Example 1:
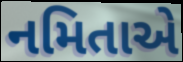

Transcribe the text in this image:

નમિતાએ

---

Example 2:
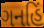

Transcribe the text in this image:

ગનહિં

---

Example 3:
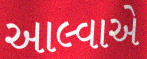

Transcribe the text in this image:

આલ્વાએ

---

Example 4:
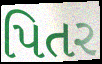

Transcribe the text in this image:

પિતર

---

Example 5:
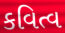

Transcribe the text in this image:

કવિત્વ